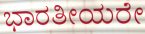
ಭಾರತೀಯರೇ